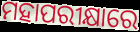
ମହାପରୀକ୍ଷାରେ